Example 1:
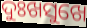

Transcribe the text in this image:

ଦୁଃଖସୁଖେ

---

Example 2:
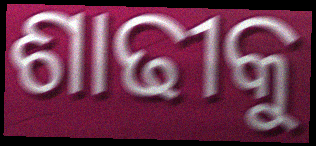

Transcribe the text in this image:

ଶାଢୀକୁ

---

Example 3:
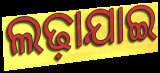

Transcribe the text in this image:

ଲଢ଼ାଯାଇ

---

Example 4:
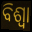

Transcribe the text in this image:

ବିଶ୍ବା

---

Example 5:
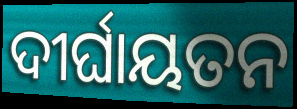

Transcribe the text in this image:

ଦୀର୍ଘାୟତନ